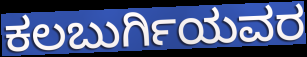
ಕಲಬುರ್ಗಿಯವರ